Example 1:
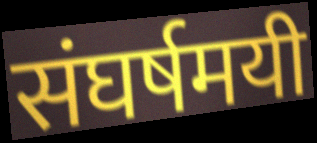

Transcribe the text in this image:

संघर्षमयी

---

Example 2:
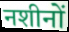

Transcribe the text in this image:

नशीनों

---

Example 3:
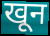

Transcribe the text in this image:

खून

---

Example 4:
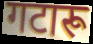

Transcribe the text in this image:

गटारू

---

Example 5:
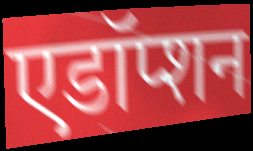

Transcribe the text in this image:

एडॉप्शन